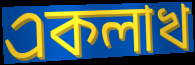
একলাখ